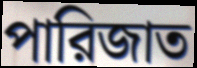
পারিজাত